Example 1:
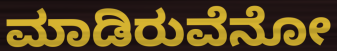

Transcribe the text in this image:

ಮಾಡಿರುವೆನೋ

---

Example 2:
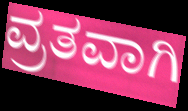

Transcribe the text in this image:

ವ್ರತವಾಗಿ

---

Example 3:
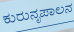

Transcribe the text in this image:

ಕುರುನೃಪಾಲನ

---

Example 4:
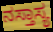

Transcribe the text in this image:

ನಸ್ತಾಸ್ಯ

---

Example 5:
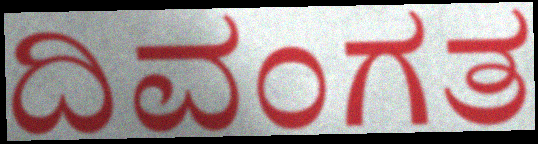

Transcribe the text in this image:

ದಿವಂಗತ